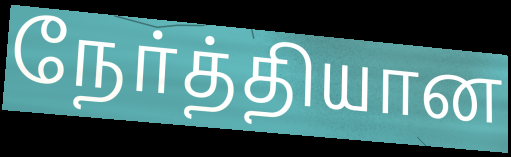
நேர்த்தியான